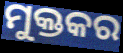
ମୁକ୍ତକର